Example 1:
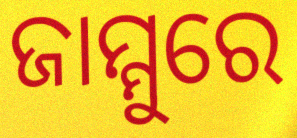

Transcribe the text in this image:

ଜାମ୍ମୁରେ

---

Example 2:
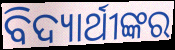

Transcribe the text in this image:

ବିଦ୍ୟାର୍ଥୀଙ୍କର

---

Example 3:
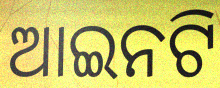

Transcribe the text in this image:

ଆଇନଟି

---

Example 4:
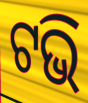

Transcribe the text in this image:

ଟଭି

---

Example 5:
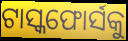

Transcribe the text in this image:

ଟାସ୍କଫୋର୍ସକୁ